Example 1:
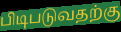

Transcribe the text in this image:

பிடிபடுவதற்கு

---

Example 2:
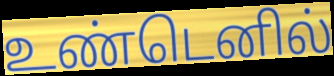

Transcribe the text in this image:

உண்டெனில்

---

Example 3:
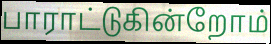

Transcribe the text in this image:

பாராட்டுகின்றோம்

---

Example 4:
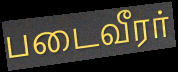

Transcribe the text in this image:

படைவீரர்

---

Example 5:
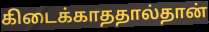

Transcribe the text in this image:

கிடைக்காததால்தான்